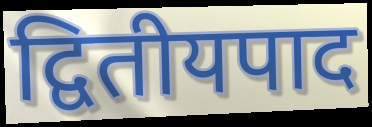
द्वितीयपाद